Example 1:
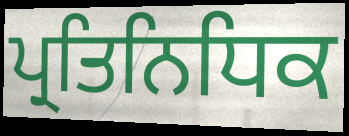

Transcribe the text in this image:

ਪ੍ਰਤਿਨਿਧਿਕ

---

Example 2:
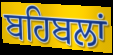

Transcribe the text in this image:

ਬਹਿਬਲਾਂ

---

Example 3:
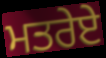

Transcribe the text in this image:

ਮਤਰੇਏ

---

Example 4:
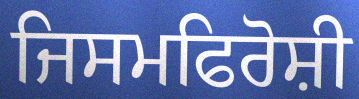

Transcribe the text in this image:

ਜਿਸਮਫਿਰੋਸ਼ੀ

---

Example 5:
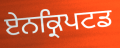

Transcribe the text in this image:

ਏਨਕ੍ਰਿਪਟਡ